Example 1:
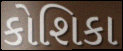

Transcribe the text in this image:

કોશિકા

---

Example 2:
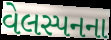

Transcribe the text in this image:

વેલસ્પનના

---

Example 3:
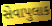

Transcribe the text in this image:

સેવાપુલાક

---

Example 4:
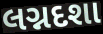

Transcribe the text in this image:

લગ્નદશા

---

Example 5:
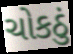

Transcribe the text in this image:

ચોકઠું